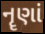
નૄણાં